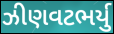
ઝીણવટભર્યુ